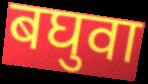
बघुवा